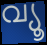
വ്യൂ